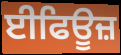
ਈਫਿਊਜ਼